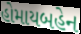
હોમાયબહેન